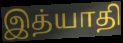
இத்யாதி